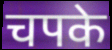
चपके